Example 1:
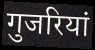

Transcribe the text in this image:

गुजरियां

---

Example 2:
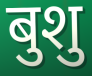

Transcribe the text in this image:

बुशु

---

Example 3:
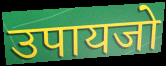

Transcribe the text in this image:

उपायजो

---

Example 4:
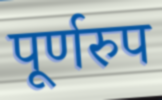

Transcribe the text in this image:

पूर्णरुप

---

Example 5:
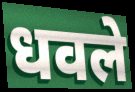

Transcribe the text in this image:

धवले